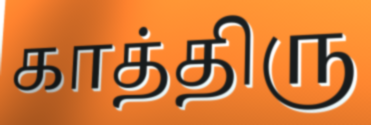
காத்திரு